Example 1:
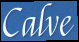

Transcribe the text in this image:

Calve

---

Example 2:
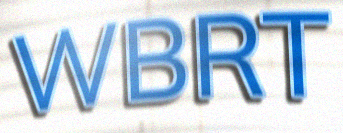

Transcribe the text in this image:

WBRT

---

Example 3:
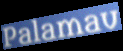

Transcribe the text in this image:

Palamau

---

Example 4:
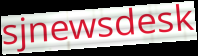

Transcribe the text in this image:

sjnewsdesk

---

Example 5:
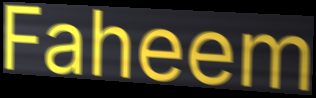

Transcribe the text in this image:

Faheem